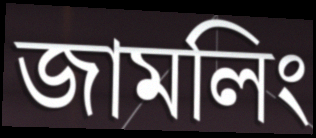
জামলিং